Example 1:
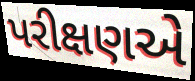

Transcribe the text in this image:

પરીક્ષણએ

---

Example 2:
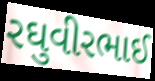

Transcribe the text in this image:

રઘુવીરભાઈ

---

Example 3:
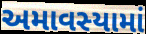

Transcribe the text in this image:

અમાવસ્યામાં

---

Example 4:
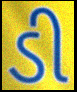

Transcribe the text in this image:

ડી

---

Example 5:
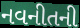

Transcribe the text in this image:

નવનીતની